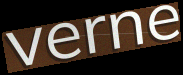
verne